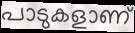
പാടുകളാണ്